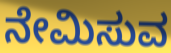
ನೇಮಿಸುವ